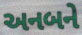
અનબને